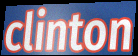
clinton